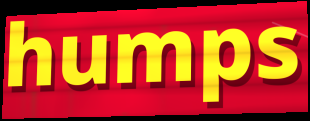
humps